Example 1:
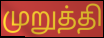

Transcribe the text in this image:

முறுத்தி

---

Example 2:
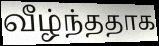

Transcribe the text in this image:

வீழ்ந்ததாக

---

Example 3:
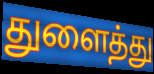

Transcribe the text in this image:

துளைத்து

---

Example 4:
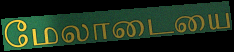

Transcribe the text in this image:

மேலாடையை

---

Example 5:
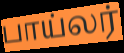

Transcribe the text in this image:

பாய்லர்